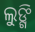
ଲୁଙ୍ଗି